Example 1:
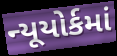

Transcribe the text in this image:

ન્યૂયોર્કમાં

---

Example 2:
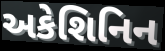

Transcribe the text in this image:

અકેશિનિન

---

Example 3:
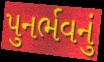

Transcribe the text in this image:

પુનર્ભવનું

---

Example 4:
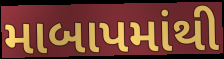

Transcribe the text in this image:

માબાપમાંથી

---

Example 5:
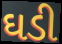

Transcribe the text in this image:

ઘડી